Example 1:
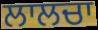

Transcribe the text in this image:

ਲਾਲਚਾ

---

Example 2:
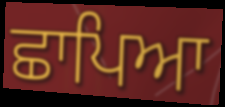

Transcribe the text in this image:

ਛਾਪਿਆ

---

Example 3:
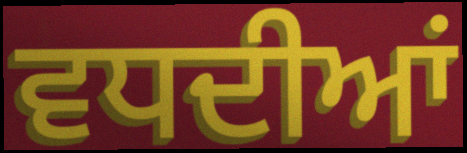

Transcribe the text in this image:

ਵਧਦੀਆਂ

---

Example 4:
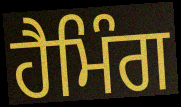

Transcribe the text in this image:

ਹੈਮਿੰਗ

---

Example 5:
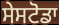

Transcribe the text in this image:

ਸੇਸਟੋਡਾ